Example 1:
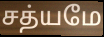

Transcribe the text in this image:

சத்யமே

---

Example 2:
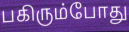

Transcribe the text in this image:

பகிரும்போது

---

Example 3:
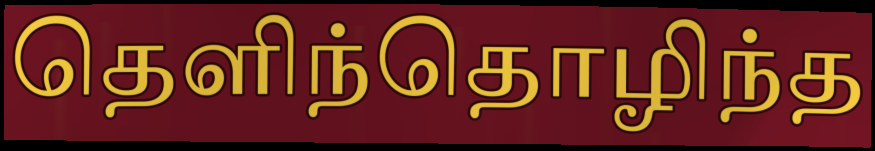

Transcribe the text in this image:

தெளிந்தொழிந்த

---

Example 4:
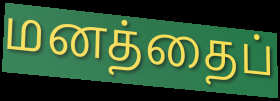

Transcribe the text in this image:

மனத்தைப்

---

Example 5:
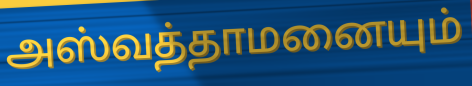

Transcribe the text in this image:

அஸ்வத்தாமனையும்